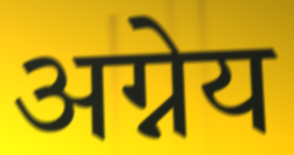
अग्नेय